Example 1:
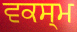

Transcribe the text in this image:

ਵਕਸ੍ਮ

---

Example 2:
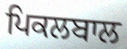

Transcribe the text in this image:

ਪਿਕਲਬਾਲ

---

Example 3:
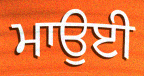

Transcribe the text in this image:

ਮਾਉਈ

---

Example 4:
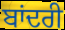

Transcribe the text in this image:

ਬਾਂਦਰੀ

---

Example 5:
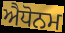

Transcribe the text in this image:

ਐਧੋਨਮ